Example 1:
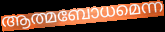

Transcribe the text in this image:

ആത്മബോധമെന്ന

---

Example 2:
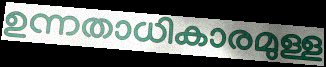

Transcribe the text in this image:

ഉന്നതാധികാരമുള്ള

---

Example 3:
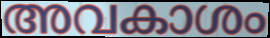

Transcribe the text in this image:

അവകാശം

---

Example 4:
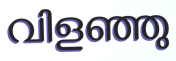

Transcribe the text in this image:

വിളഞ്ഞു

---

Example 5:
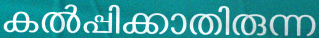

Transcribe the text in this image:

കൽപ്പിക്കാതിരുന്ന